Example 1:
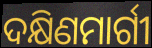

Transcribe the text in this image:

ଦକ୍ଷିଣମାର୍ଗୀ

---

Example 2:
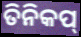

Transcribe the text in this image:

ତିନିକପ୍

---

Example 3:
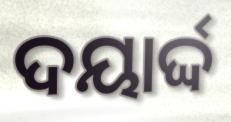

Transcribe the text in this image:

ଦୟାର୍ଦ୍ଦ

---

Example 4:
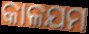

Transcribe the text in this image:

କାଳଯମ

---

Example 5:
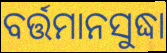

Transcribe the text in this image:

ବର୍ତ୍ତମାନସୁଦ୍ଧା